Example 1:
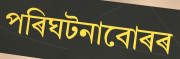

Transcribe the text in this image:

পৰিঘটনাবোৰৰ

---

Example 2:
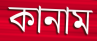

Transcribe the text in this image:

কানাম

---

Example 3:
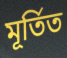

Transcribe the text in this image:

মূৰ্তিত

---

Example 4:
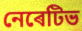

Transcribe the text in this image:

নেৰেটিভ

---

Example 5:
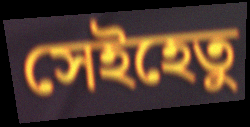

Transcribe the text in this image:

সেইহেতু